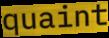
quaint